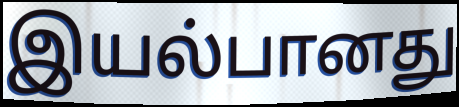
இயல்பானது